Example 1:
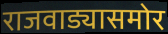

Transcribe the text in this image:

राजवाड्यासमोर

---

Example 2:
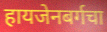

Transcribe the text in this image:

हायजेनबर्गचा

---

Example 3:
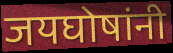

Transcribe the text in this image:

जयघोषांनी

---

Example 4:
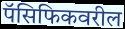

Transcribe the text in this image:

पॅसिफिकवरील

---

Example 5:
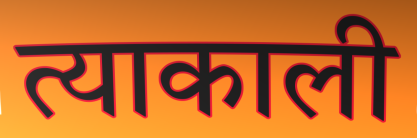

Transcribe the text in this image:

त्याकाली